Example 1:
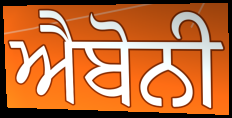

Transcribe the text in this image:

ਐਬੋਨੀ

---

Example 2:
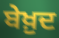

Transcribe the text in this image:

ਬੇਖ਼ੁਦ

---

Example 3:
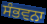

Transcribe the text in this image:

ਸੰਭਵਨਾ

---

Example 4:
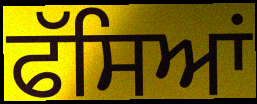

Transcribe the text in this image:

ਫੱਸਿਆਂ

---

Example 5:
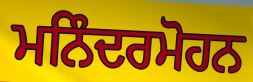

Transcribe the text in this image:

ਮਨਿੰਦਰਮੋਹਨ